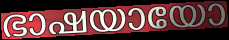
ഭാഷയായോ